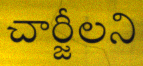
చార్జీలని